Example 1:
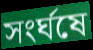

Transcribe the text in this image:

সংর্ঘষে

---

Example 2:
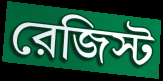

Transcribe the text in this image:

রেজিস্ট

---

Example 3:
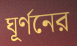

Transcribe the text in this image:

ঘূর্ণনের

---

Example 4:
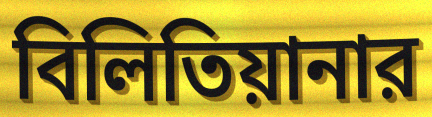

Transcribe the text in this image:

বিলিতিয়ানার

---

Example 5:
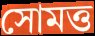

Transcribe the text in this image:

সোমত্ত